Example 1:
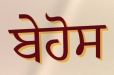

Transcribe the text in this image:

ਬੇਹੋਸ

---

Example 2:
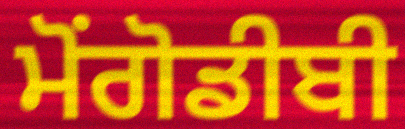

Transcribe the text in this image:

ਮੋਂਗੋਡੀਬੀ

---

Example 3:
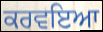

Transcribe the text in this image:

ਕਰਵਇਆ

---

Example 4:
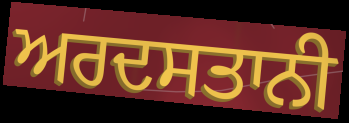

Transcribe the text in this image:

ਅਰਦਸਤਾਨੀ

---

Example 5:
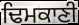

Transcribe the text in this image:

ਢਿਮਕਾਣੀ